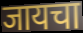
जायचा